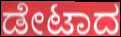
ಡೇಟಾದ